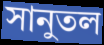
সানুতল